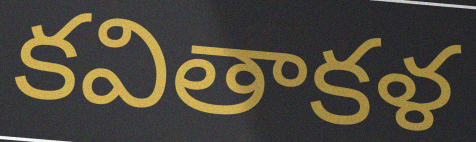
కవితాకళ